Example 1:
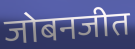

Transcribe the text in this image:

जोबनजीत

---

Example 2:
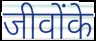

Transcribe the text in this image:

जीवोंके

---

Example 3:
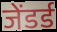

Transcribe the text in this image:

जेंडर्ड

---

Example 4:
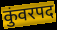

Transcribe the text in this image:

कुंवरपद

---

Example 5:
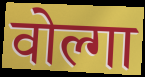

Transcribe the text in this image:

वोल्गा